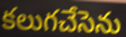
కలుగచేసెను